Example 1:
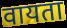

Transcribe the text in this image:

वायता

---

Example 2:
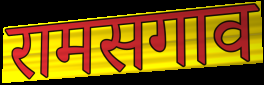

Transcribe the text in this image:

रामसगाव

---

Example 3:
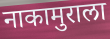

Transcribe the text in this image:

नाकामुराला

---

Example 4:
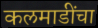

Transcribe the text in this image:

कलमाडींचा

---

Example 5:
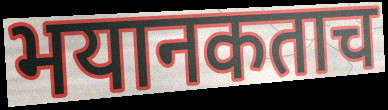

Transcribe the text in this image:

भयानकताच